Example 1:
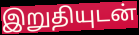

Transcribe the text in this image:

இறுதியுடன்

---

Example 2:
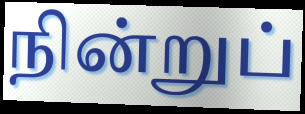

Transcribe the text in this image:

நின்றுப்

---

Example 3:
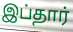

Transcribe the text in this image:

இப்தார்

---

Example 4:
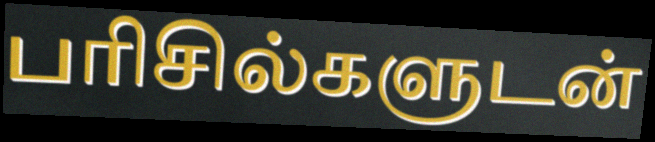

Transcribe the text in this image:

பரிசில்களுடன்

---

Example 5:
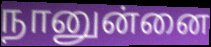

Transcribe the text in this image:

நானுன்னை